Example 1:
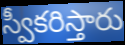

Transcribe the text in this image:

స్వీకరిస్తారు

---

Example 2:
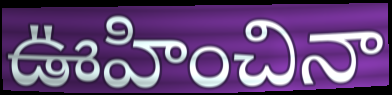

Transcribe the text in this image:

ఊహించినా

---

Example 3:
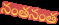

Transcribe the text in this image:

నంతనంత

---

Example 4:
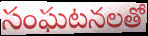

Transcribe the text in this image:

సంఘటనలతో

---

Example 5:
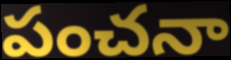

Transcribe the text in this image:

పంచనా